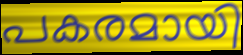
പകരമായി